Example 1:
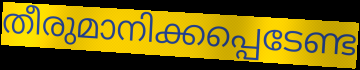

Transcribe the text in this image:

തീരുമാനിക്കപ്പെടേണ്ട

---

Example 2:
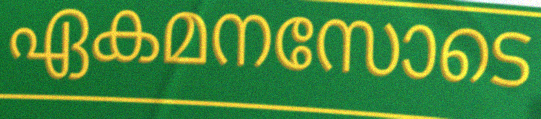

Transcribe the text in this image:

ഏകമനസോടെ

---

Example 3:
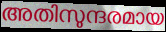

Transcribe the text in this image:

അതിസുന്ദരമായ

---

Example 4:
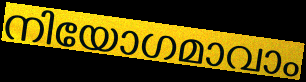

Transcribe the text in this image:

നിയോഗമാവാം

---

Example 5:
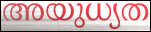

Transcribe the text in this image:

അയുധ്യത